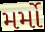
મર્મો